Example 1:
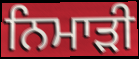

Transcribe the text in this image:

ਨਿਮਾੜੀ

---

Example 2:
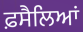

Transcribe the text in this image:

ਫ਼ਸੈਲਿਆਂ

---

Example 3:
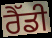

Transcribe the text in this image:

ਰੈੱਡੀ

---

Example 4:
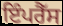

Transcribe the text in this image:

ਇੰਪਰੈੱਸ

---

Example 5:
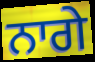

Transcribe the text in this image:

ਨਾਗੇ